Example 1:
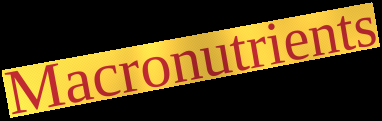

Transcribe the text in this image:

Macronutrients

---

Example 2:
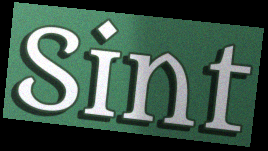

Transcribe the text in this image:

Sint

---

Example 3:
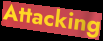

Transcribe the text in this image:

Attacking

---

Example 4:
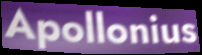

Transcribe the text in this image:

Apollonius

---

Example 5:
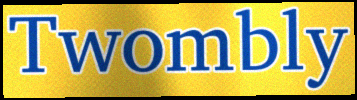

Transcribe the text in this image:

Twombly